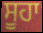
ਸੂਹਾ